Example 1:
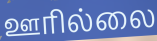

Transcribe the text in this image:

ஊரில்லை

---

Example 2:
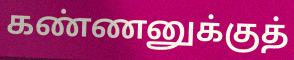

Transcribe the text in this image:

கண்ணனுக்குத்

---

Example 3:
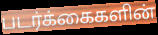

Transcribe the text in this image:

படர்க்கைகளின்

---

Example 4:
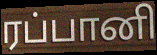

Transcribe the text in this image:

ரப்பானி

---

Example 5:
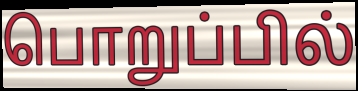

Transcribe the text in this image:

பொறுப்பில்